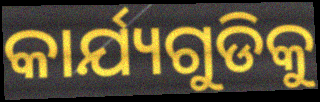
କାର୍ଯ୍ୟଗୁଡିକୁ